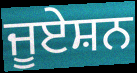
ਜੂਏਸ਼ਨ